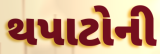
થપાટોની